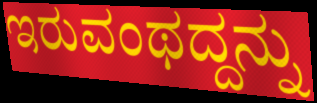
ಇರುವಂಥದ್ದನ್ನು